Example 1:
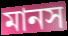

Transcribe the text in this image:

মানস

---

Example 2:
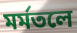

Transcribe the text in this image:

মর্মতলে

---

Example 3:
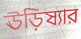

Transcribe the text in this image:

ঊড়িষ্যার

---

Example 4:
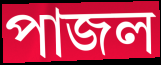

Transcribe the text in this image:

পাজল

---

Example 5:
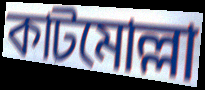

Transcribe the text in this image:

কাটমোল্লা